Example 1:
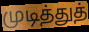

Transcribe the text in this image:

முடித்துத்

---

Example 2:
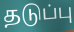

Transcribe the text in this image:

தடுப்பு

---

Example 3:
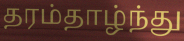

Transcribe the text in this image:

தரம்தாழ்ந்து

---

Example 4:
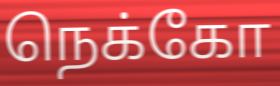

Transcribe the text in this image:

நெக்கோ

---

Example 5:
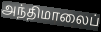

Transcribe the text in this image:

அந்திமாலைப்